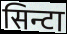
सिन्टा